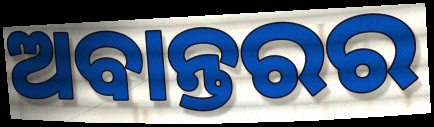
ଅବାନ୍ତରର